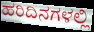
ಹರಿದಿನಗಳಲ್ಲಿ